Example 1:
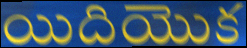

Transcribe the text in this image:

యిదియొక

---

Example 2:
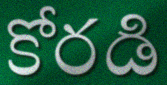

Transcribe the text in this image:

కోరడి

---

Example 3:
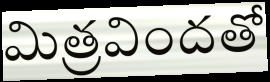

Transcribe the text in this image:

మిత్రవిందతో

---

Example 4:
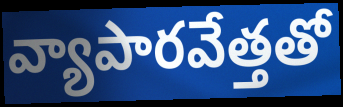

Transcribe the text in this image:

వ్యాపారవేత్తతో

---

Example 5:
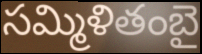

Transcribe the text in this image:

సమ్మిళితంబై